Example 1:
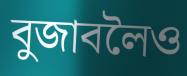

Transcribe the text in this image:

বুজাবলৈও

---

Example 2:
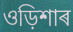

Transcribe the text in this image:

ওড়িশাৰ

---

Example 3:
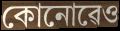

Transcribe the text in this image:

কোনোৱেও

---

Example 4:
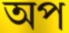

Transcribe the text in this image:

অপ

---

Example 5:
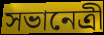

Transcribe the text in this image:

সভানেত্ৰী